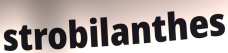
strobilanthes